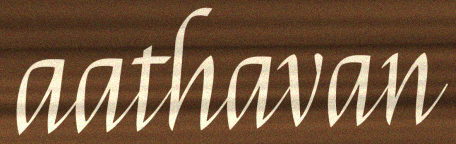
aathavan